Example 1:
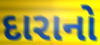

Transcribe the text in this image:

દારાનો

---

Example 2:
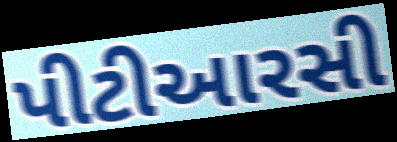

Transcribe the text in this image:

પીટીઆરસી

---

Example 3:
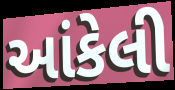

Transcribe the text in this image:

આંકેલી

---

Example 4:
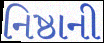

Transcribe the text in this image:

નિષ્ઠાની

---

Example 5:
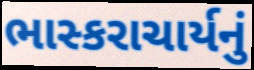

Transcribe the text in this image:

ભાસ્કરાચાર્યનું